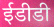
ईडीडी